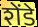
शेंडे